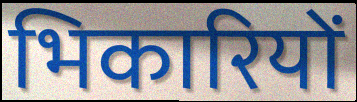
भिकारियों